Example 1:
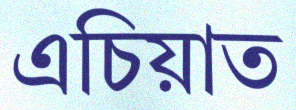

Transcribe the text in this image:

এচিয়াত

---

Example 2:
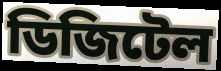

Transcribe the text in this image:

ডিজিটেল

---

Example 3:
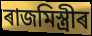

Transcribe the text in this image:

ৰাজমিস্ত্ৰীৰ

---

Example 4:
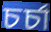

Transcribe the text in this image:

চৰ্চা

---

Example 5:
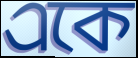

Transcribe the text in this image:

একে